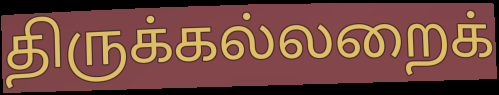
திருக்கல்லறைக்